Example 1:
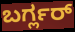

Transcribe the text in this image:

ಬರ್ಗ್ಲರ್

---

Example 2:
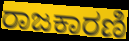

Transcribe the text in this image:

ರಾಜಕಾರಣಿ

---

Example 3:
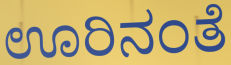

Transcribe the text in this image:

ಊರಿನಂತೆ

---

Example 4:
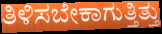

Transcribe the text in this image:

ತಿಳಿಸಬೇಕಾಗುತ್ತಿತ್ತು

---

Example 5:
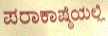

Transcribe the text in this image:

ಪರಾಕಾಷ್ಠೆಯಲ್ಲಿ